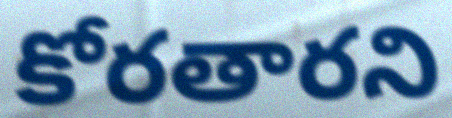
కోరతారని